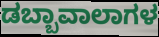
ಡಬ್ಬಾವಾಲಾಗಳ